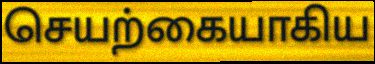
செயற்கையாகிய